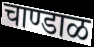
चाण्डाळ